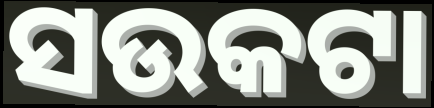
ସଉକଟା